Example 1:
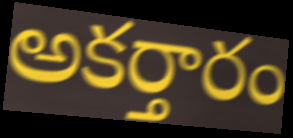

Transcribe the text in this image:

అకర్తారం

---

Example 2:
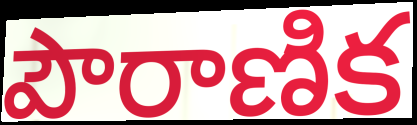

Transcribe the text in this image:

పౌరాణిక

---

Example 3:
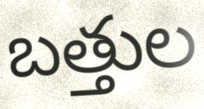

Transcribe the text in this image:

బత్తుల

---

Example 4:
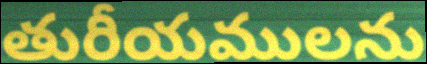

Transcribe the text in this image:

తురీయములను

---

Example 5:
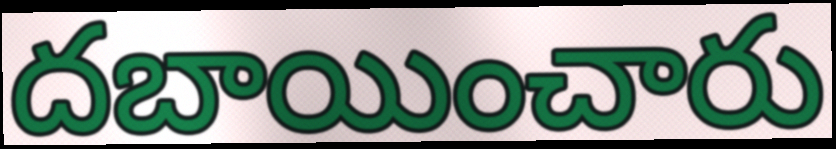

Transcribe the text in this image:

దబాయించారు